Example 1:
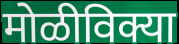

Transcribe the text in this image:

मोळीविक्या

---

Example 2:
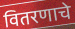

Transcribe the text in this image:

वितरणाचे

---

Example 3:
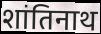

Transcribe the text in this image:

शांतिनाथ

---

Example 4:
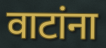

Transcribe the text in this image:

वाटांना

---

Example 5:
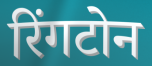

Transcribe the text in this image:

रिंगटोन